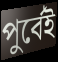
পুর্বেই